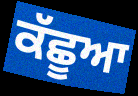
ਕੱਛੂਆ